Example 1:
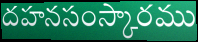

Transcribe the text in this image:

దహనసంస్కారము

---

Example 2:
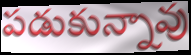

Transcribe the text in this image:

పడుకున్నావు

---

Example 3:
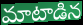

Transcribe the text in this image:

మాటాడిన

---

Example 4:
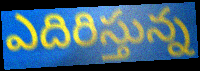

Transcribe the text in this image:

ఎదిరిస్తున్న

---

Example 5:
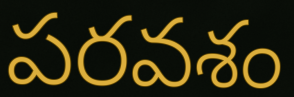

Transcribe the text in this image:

పరవశం